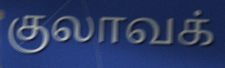
குலாவக்